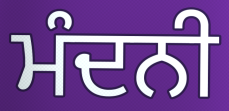
ਮੰਦਨੀ